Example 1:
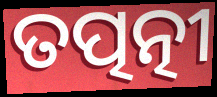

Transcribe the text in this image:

ତତ୍ପତ୍ନୀ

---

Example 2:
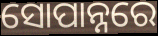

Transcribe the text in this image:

ସୋପାନ୍ନରେ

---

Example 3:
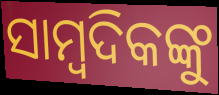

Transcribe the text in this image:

ସାମ୍ବଦିକଙ୍କୁ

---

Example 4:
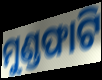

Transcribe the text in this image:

ମୁଣ୍ଡଫାଟି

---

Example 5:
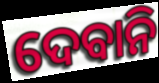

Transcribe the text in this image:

ଦେବାନି